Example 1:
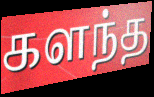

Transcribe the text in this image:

களந்த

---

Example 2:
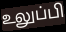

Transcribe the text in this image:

உலுப்பி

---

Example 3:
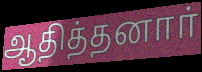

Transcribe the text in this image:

ஆதித்தனார்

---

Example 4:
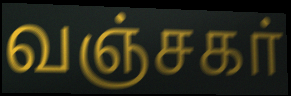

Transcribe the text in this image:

வஞ்சகர்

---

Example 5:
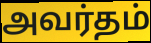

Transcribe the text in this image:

அவர்தம்